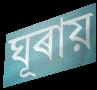
ঘূৰায়